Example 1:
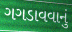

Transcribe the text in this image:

ગગડાવવાનું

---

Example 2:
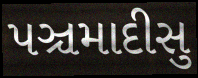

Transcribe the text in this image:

પઞ્ચમાદીસુ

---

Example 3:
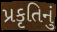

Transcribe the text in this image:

પ્રકૃતિનું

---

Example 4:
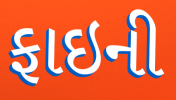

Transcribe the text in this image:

ફાઇની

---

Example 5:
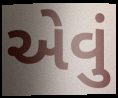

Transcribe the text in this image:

એવું